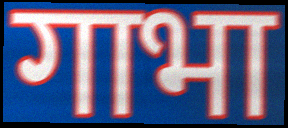
गाभा